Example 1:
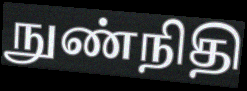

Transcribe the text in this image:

நுண்நிதி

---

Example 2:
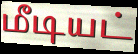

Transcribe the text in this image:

மீடியட்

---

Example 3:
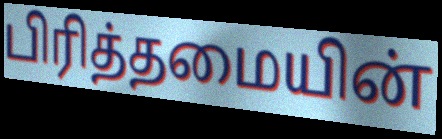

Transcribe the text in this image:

பிரித்தமையின்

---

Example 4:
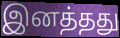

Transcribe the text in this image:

இனத்தது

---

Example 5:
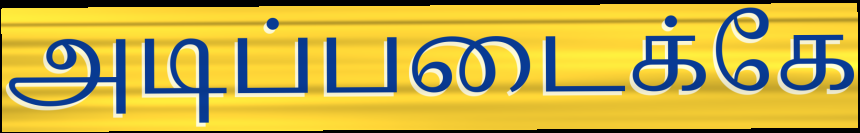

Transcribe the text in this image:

அடிப்படைக்கே